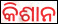
କିଶାନ